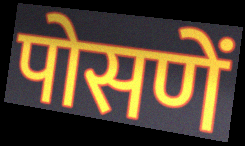
पोसणें